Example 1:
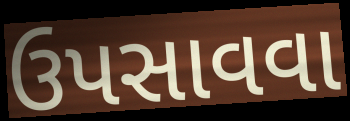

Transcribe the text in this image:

ઉપસાવવા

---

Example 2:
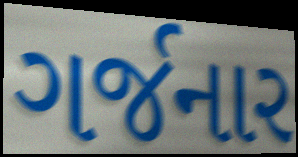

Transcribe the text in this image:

ગર્જનાર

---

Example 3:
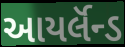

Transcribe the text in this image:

આયર્લૅન્ડ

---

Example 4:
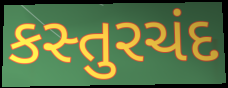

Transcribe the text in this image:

કસ્તુરચંદ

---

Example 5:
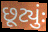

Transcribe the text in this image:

છૂટ્યુંઃ